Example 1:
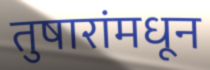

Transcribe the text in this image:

तुषारांमधून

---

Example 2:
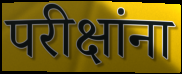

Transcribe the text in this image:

परीक्षांना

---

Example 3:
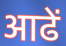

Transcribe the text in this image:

आढें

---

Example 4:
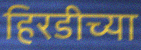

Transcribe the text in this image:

हिरडीच्या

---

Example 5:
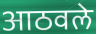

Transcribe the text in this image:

आठवले